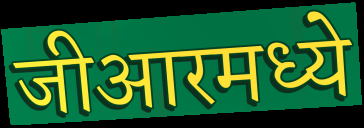
जीआरमध्ये